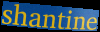
shantine